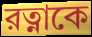
রত্নাকে